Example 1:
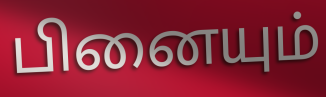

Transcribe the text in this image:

பினையும்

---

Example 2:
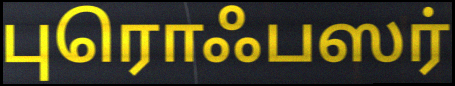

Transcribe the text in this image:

புரொஃபஸர்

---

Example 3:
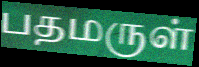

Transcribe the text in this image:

பதமருள்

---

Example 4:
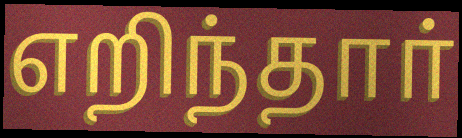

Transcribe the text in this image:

எறிந்தார்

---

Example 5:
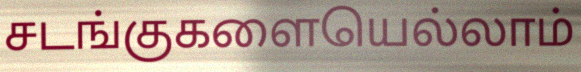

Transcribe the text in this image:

சடங்குகளையெல்லாம்